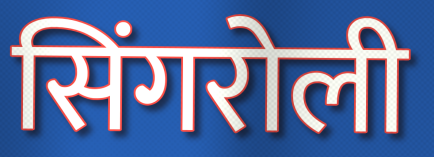
सिंगरोली